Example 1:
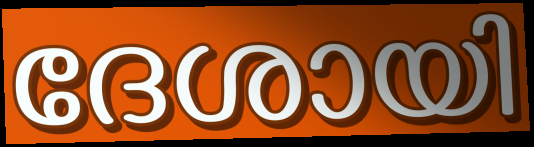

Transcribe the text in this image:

ദേശായി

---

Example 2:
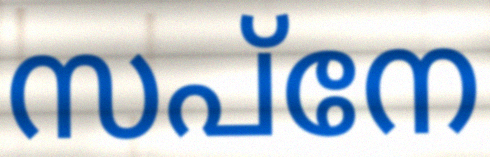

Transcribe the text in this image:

സപ്നേ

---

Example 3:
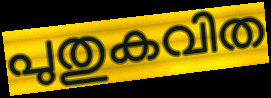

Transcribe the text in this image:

പുതുകവിത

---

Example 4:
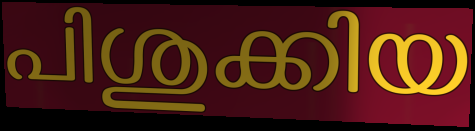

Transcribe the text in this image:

പിശുക്കിയ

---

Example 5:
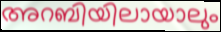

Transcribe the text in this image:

അറബിയിലായാലും